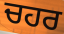
ਚਹਰ